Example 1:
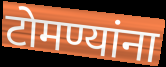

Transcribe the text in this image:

टोमण्यांना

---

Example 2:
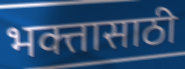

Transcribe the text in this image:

भक्तासाठी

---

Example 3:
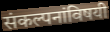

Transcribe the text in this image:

संकल्पनांविषयी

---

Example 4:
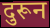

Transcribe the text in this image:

दुरून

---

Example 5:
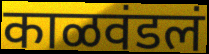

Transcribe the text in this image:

काळवंडलं